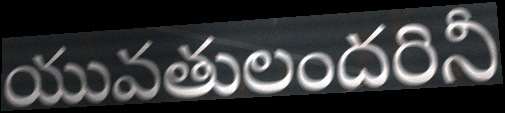
యువతులందరినీ